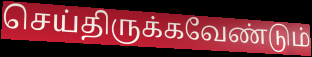
செய்திருக்கவேண்டும்